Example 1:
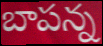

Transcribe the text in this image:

బాపన్న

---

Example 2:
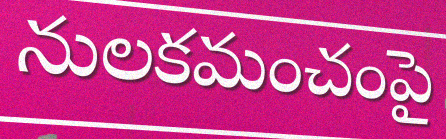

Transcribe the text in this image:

నులకమంచంపై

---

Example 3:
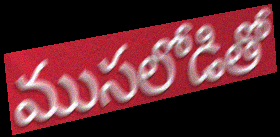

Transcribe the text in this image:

ముసలోడితో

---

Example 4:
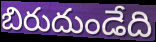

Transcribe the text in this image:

బిరుదుండేది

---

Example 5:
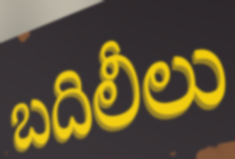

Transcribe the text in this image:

బదిలీలు